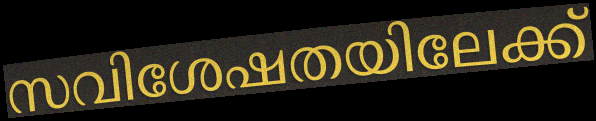
സവിശേഷതയിലേക്ക്